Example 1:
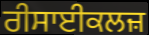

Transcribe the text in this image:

ਰੀਸਾਈਕਲਜ਼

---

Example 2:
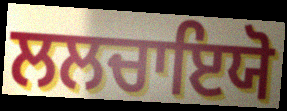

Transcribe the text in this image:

ਲਲਚਾਇਯੋ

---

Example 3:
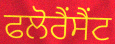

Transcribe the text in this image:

ਫਲੋਰੈਂਸੈਂਟ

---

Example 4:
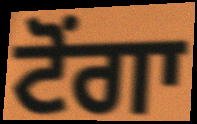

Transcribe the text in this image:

ਟੋਂਗਾ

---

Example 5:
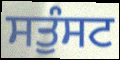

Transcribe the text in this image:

ਸਤੁੰਸਟ